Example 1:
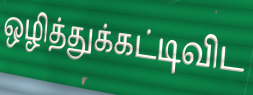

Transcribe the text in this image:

ஒழித்துக்கட்டிவிட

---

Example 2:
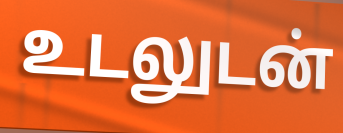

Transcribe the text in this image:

உடலுடன்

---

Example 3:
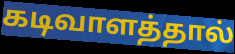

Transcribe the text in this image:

கடிவாளத்தால்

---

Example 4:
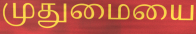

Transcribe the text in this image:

முதுமையை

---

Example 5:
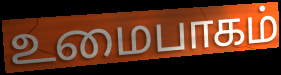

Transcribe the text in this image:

உமைபாகம்